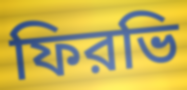
ফিরভি